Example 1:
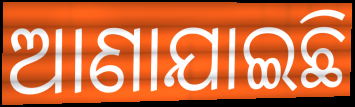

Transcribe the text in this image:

ଆଣାଯାଇଛି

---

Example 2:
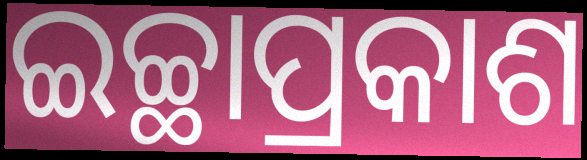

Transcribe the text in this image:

ଇଚ୍ଛାପ୍ରକାଶ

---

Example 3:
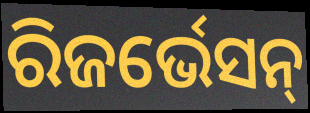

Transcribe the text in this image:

ରିଜର୍ଭେସନ୍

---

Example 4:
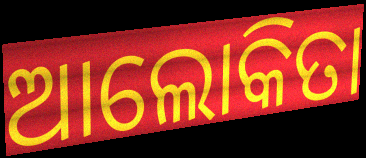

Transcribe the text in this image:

ଆଲୋକିତା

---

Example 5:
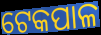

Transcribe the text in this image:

ଟେକପାଳ